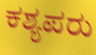
ಕಶ್ಯಪರು